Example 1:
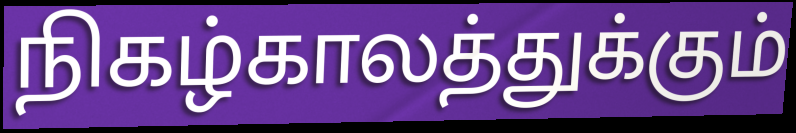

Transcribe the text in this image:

நிகழ்காலத்துக்கும்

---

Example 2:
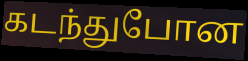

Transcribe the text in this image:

கடந்துபோன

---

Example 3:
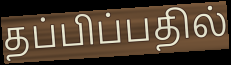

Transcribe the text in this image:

தப்பிப்பதில்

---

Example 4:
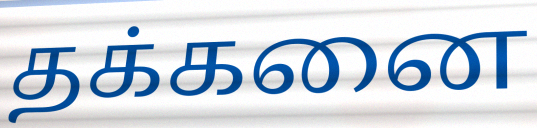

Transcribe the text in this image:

தக்கனை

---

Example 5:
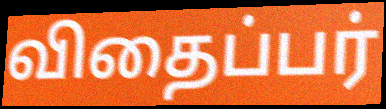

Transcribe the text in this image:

விதைப்பர்